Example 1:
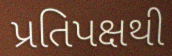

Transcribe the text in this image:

પ્રતિપક્ષથી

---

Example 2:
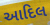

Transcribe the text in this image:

આદિલ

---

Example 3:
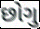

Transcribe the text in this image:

છોગુ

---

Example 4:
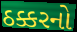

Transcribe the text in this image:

ઠક્કરનો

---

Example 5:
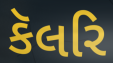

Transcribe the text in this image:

કૅલરિ